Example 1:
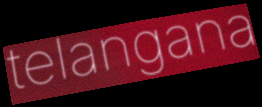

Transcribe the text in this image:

telangana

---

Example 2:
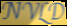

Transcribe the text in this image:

NVLD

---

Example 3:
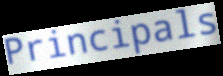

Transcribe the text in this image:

Principals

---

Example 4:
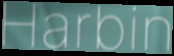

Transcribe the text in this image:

Harbin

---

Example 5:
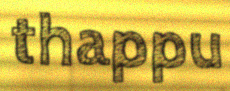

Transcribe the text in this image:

thappu